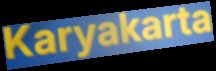
Karyakarta